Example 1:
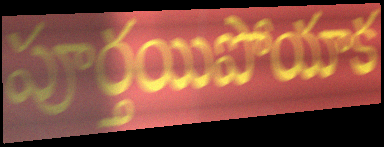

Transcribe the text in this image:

పూర్తయిపోయాక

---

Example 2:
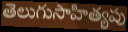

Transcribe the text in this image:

తెలుగుసాహిత్యపు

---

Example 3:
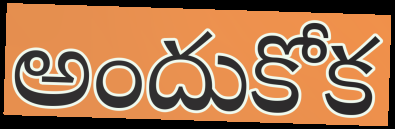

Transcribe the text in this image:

అందుకోక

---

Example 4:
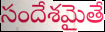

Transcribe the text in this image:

సందేశమైతే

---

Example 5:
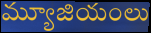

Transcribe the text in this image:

మ్యూజియంలు